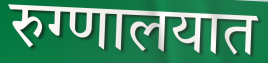
रुग्णालयात